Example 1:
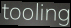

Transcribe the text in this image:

tooling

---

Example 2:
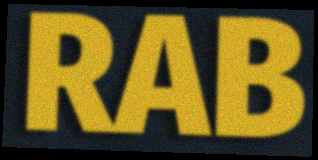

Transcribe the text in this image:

RAB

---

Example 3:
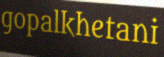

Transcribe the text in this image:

gopalkhetani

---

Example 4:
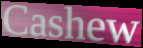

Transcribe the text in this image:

Cashew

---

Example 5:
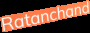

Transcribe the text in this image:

Ratanchand